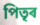
পিতৃৰ